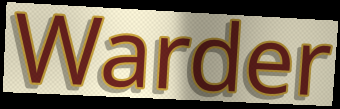
Warder